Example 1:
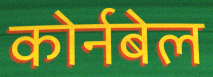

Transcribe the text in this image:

कोर्नबेल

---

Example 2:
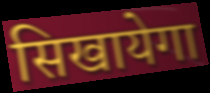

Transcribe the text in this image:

सिखायेगा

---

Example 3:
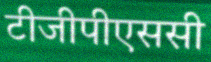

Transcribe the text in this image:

टीजीपीएससी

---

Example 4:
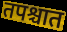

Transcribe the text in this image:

तपश्चात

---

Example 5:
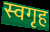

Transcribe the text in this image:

स्वगृह